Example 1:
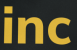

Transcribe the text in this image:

inc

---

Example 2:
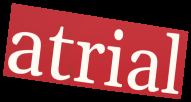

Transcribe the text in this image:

atrial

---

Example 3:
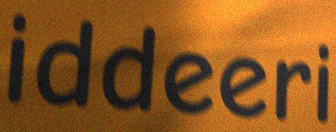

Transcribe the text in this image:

iddeeri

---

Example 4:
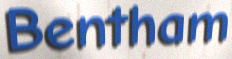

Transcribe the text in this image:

Bentham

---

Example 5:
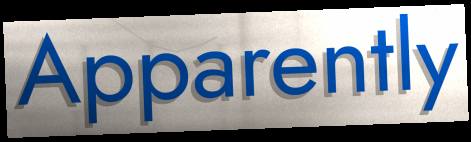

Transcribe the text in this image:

Apparently